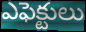
ఎఫెక్టులు